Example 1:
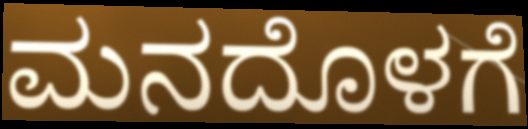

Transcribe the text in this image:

ಮನದೊಳಗೆ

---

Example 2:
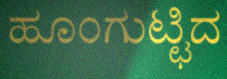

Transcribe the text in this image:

ಹೂಂಗುಟ್ಟಿದ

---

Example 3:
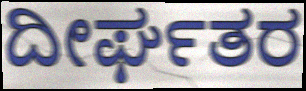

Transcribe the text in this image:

ದೀರ್ಘತರ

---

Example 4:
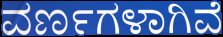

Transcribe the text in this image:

ವರ್ಣಗಳಾಗಿವೆ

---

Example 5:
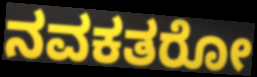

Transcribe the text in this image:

ನವಕತರೋ